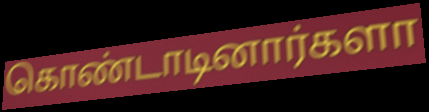
கொண்டாடினார்களா